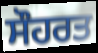
ਸੌਹਰਤ